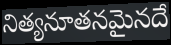
నిత్యనూతనమైనదే